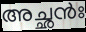
അച്ഛൻഃ